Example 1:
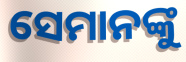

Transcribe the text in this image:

ସେମାନଙ୍କୁ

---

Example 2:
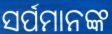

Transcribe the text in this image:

ସର୍ପମାନଙ୍କ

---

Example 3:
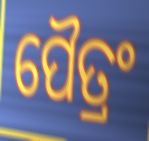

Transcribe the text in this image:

ପୈତ୍ରଂ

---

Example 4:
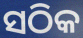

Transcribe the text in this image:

ସଠିକ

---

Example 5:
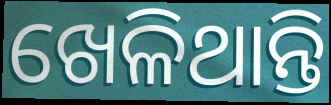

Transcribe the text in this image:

ଖେଳିଥାନ୍ତି